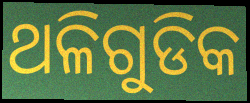
ଥଳିଗୁଡିକ